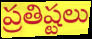
ప్రతిష్టలు